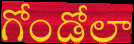
గోండోలా